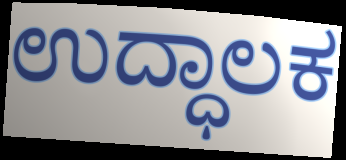
ಉದ್ಧಾಲಕ